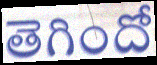
తెగిందో